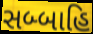
સબ્બાહિ